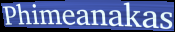
Phimeanakas